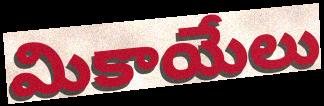
మికాయేలు